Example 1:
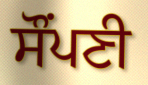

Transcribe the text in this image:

ਸੌਂਪਣੀ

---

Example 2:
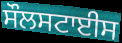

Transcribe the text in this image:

ਸੌਲਸਟਾਈਸ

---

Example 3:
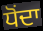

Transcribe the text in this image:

ਧੋਂਦਾ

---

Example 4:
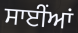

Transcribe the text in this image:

ਸਾਈਂਆਂ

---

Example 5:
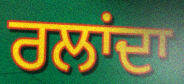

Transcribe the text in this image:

ਰਲਾਂਦਾ